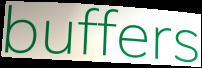
buffers